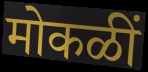
मोकळीं